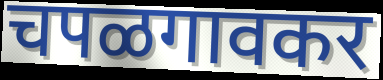
चपळगावकर